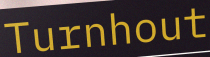
Turnhout